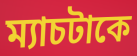
ম্যাচটাকে